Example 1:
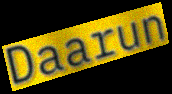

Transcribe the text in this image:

Daarun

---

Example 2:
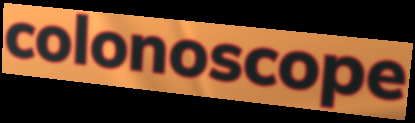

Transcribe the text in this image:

colonoscope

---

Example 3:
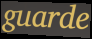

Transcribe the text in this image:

guarde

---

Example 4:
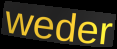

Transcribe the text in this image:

weder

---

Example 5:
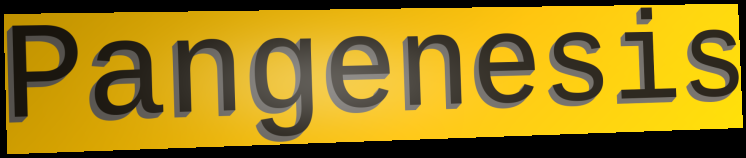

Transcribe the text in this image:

Pangenesis